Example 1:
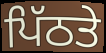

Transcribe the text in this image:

ਪਿੱਠਤੇ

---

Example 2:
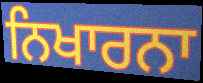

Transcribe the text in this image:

ਨਿਖਾਰਨਾ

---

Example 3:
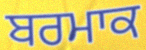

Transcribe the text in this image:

ਬਰਮਾਕ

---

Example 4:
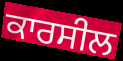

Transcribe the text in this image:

ਕਾਰਸੀਲ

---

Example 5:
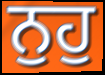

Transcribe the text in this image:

ਨੁਹੁ